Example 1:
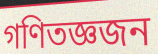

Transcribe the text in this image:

গণিতজ্ঞজন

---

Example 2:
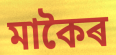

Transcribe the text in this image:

মাকৈৰ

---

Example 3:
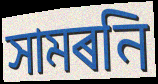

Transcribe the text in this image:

সামৰনি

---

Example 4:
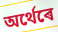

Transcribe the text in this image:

অৰ্থেৰে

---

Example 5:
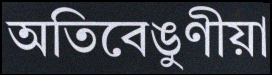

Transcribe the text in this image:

অতিবেঙুণীয়া